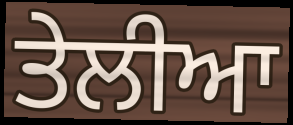
ਤੇਲੀਆ